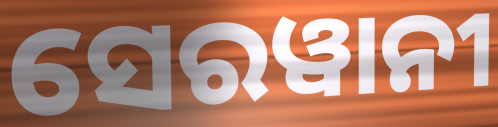
ସେରୱାନୀ